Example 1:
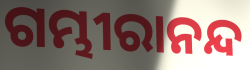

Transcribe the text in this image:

ଗମ୍ଭୀରାନନ୍ଦ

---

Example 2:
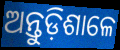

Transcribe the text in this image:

ଅନ୍ତୁଡ଼ିଶାଳେ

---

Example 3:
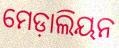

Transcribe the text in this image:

ମେଡ଼ାଲିୟନ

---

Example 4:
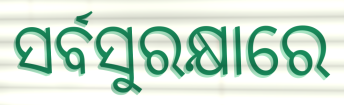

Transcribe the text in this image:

ସର୍ବସୁରକ୍ଷାରେ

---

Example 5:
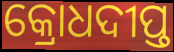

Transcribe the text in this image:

କ୍ରୋଧଦୀପ୍ତ